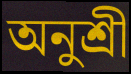
অনুশ্ৰী